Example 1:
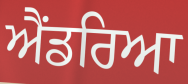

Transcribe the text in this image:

ਐਂਡਰਿਆ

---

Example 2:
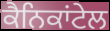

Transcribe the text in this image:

ਕੈਨਿਕਾਂਟੇਲ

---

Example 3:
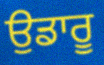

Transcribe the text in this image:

ਉਡਾਰੂ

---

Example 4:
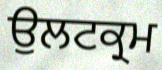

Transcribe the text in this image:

ਉਲਟਕ੍ਰਮ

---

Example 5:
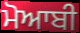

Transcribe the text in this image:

ਮੋਆਬੀ